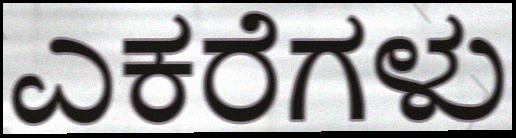
ಎಕರೆಗಳು